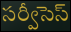
సర్వీసెస్